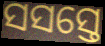
ସସସ୍ତେ